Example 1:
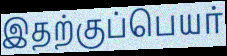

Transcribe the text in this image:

இதற்குப்பெயர்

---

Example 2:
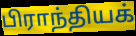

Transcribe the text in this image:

பிராந்தியக்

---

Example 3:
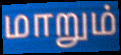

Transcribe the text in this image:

மாறும்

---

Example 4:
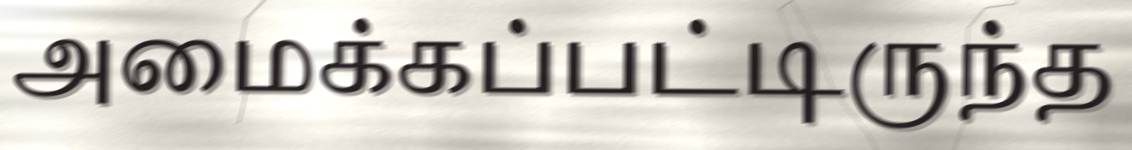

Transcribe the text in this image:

அமைக்கப்பட்டிருந்த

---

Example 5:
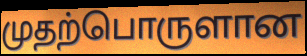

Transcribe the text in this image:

முதற்பொருளான